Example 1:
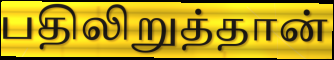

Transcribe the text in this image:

பதிலிறுத்தான்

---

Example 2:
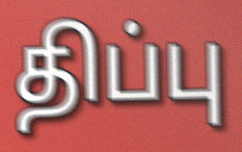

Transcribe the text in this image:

திப்பு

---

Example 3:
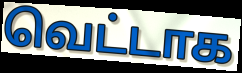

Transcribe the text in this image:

வெட்டாக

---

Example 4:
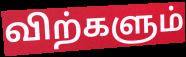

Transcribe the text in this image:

விற்களும்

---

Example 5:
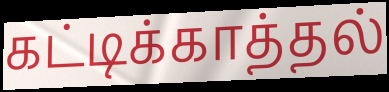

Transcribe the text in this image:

கட்டிக்காத்தல்